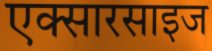
एक्सारसाइज